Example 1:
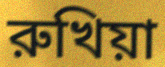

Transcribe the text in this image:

রুখিয়া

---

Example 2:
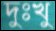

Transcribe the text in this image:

দুঃখু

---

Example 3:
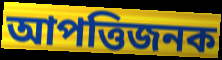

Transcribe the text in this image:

আপত্তিজনক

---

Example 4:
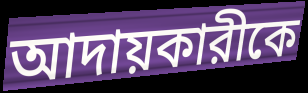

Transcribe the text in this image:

আদায়কারীকে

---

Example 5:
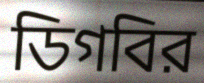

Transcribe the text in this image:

ডিগবির